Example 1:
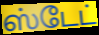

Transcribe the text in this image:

ஸ்டேட்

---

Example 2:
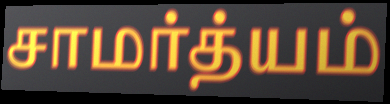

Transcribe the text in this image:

சாமர்த்யம்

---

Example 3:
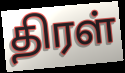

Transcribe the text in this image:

திரள்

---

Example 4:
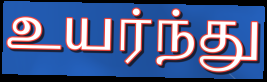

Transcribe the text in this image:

உயர்ந்து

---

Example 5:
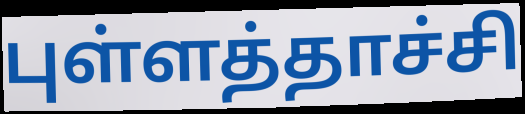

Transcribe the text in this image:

புள்ளத்தாச்சி